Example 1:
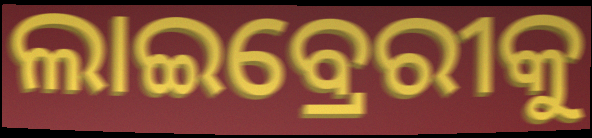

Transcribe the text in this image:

ଲାଇବ୍ରେରୀକୁ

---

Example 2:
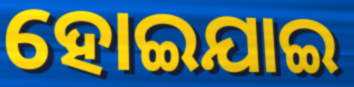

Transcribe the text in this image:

ହୋଇଯାଇ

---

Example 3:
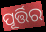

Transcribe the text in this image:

ପୂର୍ତ୍ତିର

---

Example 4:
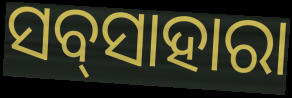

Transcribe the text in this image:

ସବ୍‌ସାହାରା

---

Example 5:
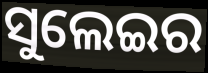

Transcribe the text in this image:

ସୁଲେଇର